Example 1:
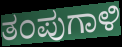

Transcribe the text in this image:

ತಂಪುಗಾಳಿ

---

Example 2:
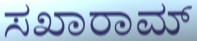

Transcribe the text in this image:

ಸಖಾರಾಮ್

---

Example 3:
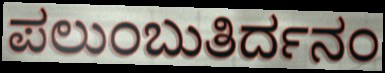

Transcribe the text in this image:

ಪಲುಂಬುತಿರ್ದನಂ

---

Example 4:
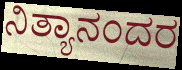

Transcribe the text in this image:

ನಿತ್ಯಾನಂದರ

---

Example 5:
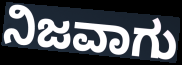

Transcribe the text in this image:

ನಿಜವಾಗು